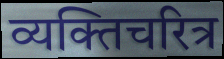
व्यक्तिचरित्र